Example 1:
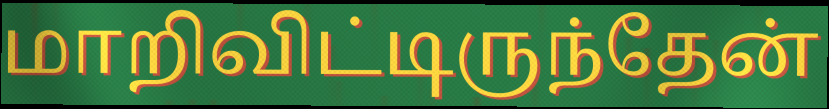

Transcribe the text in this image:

மாறிவிட்டிருந்தேன்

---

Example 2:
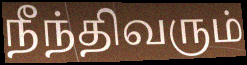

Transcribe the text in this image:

நீந்திவரும்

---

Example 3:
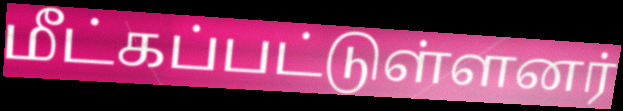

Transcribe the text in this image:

மீட்கப்பட்டுள்ளனர்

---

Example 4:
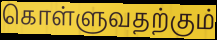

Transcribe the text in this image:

கொள்ளுவதற்கும்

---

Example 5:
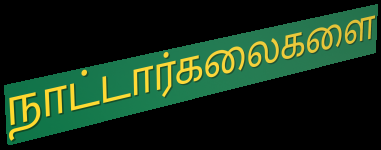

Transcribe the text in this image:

நாட்டார்கலைகளை